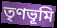
তৃণভূমি